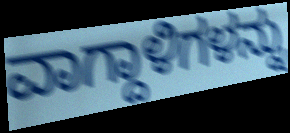
ವಾಗ್ದಾಳಿಗಳನ್ನು